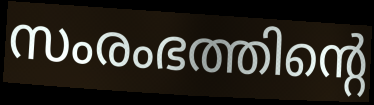
സംരംഭത്തിന്റെ